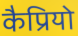
कैप्रियो